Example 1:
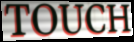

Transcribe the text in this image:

TOUCH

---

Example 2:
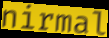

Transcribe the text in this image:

nirmal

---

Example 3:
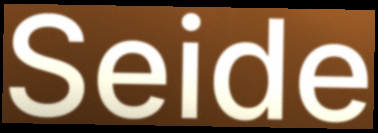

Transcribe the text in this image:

Seide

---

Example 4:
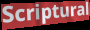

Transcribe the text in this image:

Scriptural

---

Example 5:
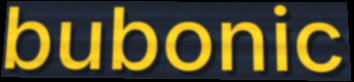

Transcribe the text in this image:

bubonic